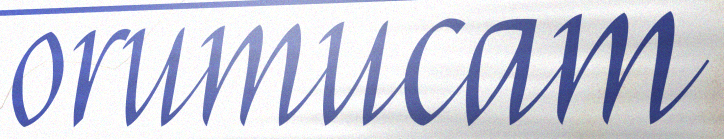
orumucam